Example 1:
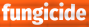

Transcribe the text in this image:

fungicide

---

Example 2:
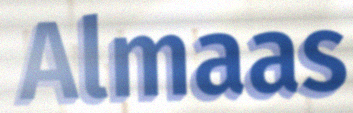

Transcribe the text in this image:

Almaas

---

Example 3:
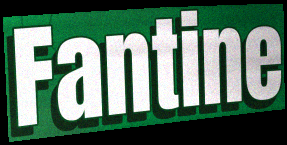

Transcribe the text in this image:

Fantine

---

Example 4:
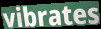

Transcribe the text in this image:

vibrates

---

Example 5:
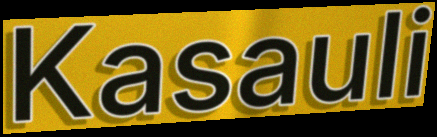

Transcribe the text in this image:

Kasauli